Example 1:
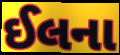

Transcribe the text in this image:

ઈલના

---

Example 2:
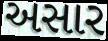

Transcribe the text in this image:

અસાર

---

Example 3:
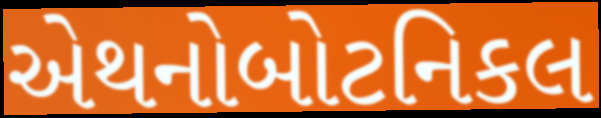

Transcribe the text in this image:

એથનોબોટનિકલ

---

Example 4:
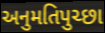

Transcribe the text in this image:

અનુમતિપુચ્છા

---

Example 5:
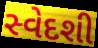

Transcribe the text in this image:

સ્વેદશી